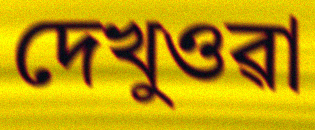
দেখুওৱা